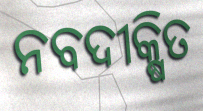
ନବଦୀକ୍ଷିତ